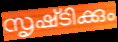
സൃഷ്‌ടിക്കും